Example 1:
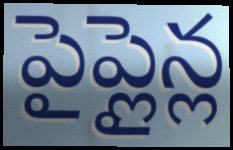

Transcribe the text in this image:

పైప్లైన్ల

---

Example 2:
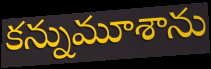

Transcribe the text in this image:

కన్నుమూశాను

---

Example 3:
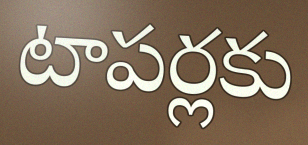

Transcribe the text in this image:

టాపర్లకు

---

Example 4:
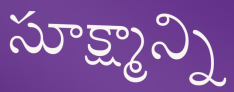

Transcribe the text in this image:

సూక్ష్మాన్ని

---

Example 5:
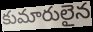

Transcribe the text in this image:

కుమారులైన